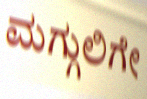
ಮಗ್ಗುಲಿಗೇ